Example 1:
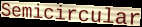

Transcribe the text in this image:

Semicircular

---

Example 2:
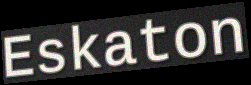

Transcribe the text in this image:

Eskaton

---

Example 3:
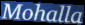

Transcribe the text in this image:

Mohalla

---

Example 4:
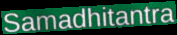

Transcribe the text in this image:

Samadhitantra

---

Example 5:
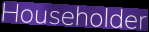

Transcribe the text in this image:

Householder